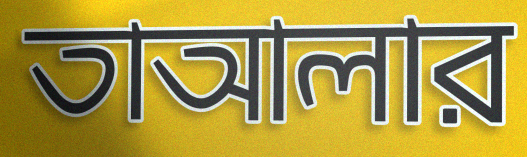
তাআলার